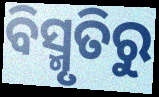
ବିସ୍ମୃତିରୁ